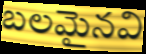
బలమైనవి